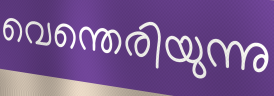
വെന്തെരിയുന്നു